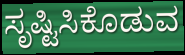
ಸೃಷ್ಟಿಸಿಕೊಡುವ